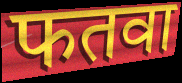
फतवा